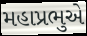
મહાપ્રભુએ